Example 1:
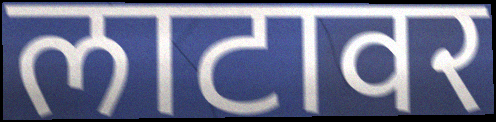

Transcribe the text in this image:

लाटावर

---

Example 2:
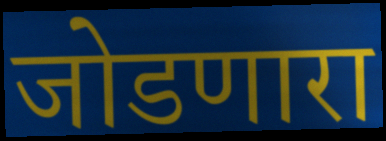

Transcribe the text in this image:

जोडणारा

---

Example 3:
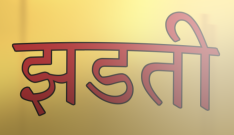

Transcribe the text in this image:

झडती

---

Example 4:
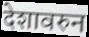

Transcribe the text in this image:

देशावरुन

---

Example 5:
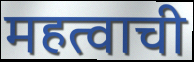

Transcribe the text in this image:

महत्वाची